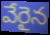
వేరైన